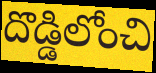
దొడ్డిలోంచి